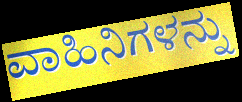
ವಾಹಿನಿಗಳನ್ನು